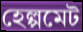
হেল্পমেট